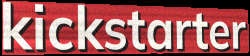
kickstarter